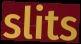
slits